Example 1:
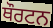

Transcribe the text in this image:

ਥੌਰਟਨ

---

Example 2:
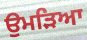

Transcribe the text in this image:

ਉਮੜਿਆ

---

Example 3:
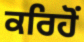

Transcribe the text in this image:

ਕਰਿਹੋਂ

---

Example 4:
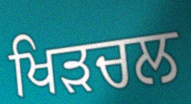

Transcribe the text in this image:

ਖਿੜਚਲ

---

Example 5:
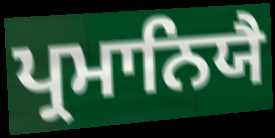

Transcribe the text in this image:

ਪ੍ਰਮਾਨਿਯੈ